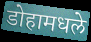
डोहामधले